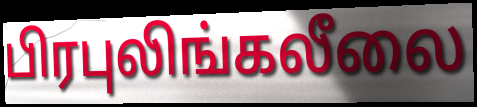
பிரபுலிங்கலீலை